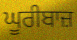
ਘੂਰੀਬਾਜ਼